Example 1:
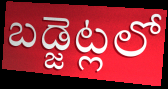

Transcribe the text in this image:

బడ్జెట్లలో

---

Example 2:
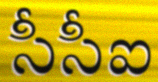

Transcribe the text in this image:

సీసీఐ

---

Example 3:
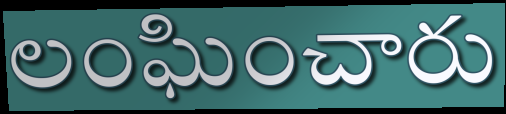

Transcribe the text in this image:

లంఘించారు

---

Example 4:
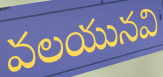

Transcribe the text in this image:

వలయునవి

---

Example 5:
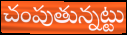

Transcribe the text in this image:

చంపుతున్నట్టు